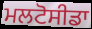
ਮਲਟੋਸੀਡਾ